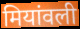
मियांवली